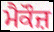
ਮੈਕੌਜ਼